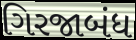
ગિરજાબંધ